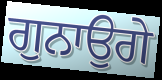
ਗੁਨਾਉਗੇ